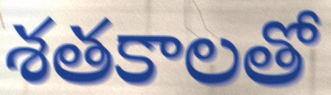
శతకాలతో